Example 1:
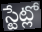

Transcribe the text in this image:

స్టేట్లో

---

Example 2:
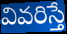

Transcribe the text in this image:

వివరిస్తే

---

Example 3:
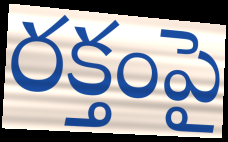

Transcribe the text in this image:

రక్తంపై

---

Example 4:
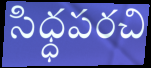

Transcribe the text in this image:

సిధ్ధపరచి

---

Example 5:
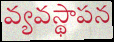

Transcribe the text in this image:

వ్యవస్థాపన